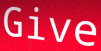
Give